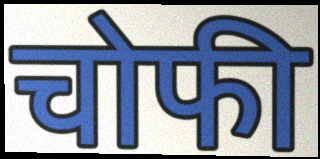
चोफी